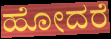
ಹೋದರೆ